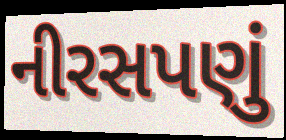
નીરસપણું